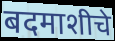
बदमाशीचे